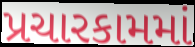
પ્રચારકામમાં